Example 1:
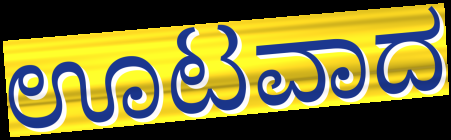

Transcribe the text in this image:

ಊಟವಾದ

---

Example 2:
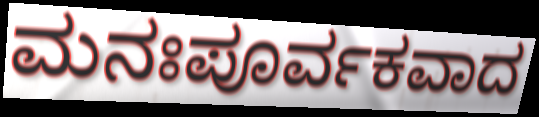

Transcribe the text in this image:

ಮನಃಪೂರ್ವಕವಾದ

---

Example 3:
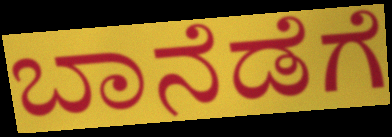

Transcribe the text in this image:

ಬಾನೆಡೆಗೆ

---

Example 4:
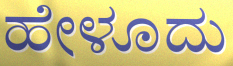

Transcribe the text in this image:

ಹೇಳೂದು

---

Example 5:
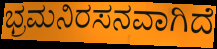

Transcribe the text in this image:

ಭ್ರಮನಿರಸನವಾಗಿದೆ